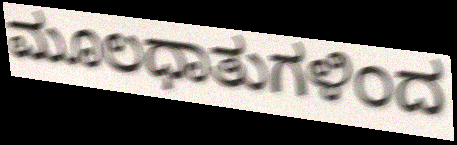
ಮೂಲಧಾತುಗಳಿಂದ